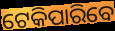
ଟେକିପାରିବେ